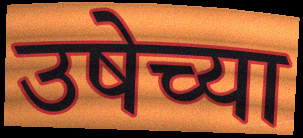
उषेच्या